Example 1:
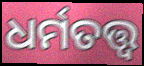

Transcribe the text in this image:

ଧର୍ମତତ୍ତ୍ଵ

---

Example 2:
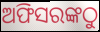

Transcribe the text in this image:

ଅଫିସରଙ୍କଠୁ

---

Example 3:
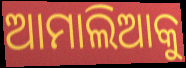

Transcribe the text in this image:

ଆମାଲିଆକୁ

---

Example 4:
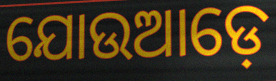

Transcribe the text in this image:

ଯୋଉଆଡ଼େ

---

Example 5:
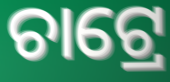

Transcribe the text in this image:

ଚାଟ୍ରେ